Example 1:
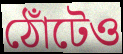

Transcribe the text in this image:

ঠোঁটেও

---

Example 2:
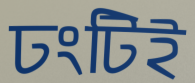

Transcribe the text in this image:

ঢংটিই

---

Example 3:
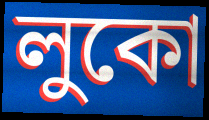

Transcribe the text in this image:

লুকো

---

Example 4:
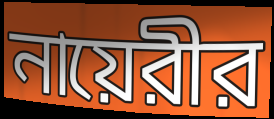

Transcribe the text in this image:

নায়েরীর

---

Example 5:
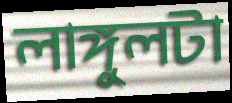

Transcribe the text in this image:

লাঙ্গুলটা